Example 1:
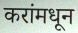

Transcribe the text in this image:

करांमधून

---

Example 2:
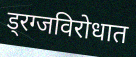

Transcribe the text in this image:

ड्रग्जविरोधात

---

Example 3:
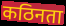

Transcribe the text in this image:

कठिनता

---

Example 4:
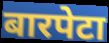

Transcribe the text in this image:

बारपेटा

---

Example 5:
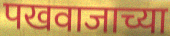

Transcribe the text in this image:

पखवाजाच्या